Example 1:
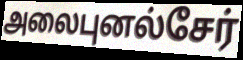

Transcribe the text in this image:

அலைபுனல்சேர்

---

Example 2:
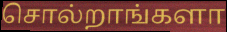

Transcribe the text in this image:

சொல்றாங்களா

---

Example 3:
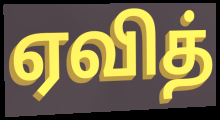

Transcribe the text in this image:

ஏவித்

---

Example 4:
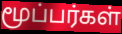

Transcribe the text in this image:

மூப்பர்கள்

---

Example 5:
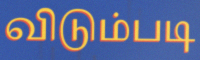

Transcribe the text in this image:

விடும்படி